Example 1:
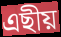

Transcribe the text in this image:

এছীয়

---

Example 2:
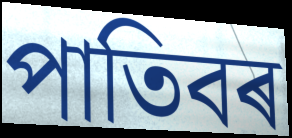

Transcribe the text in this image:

পাতিবৰ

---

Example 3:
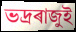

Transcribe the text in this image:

ভদ্ৰৰাজুই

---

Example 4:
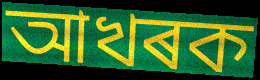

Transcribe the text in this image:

আখৰক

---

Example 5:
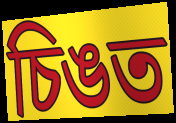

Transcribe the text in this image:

চিঙত